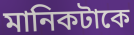
মানিকটাকে